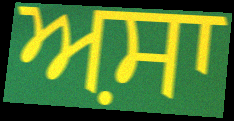
ਅ਼ਸਾ